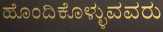
ಹೊಂದಿಕೊಳ್ಳುವವರು